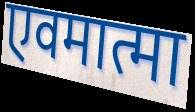
एवमात्मा